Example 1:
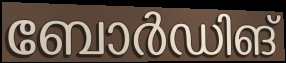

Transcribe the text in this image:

ബോർഡിങ്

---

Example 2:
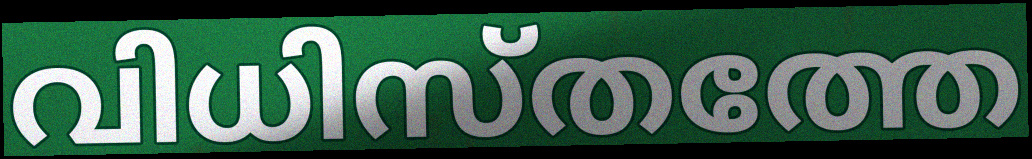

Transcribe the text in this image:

വിധിസ്തത്തേ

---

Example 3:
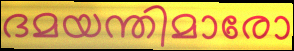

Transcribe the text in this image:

ദമയന്തിമാരോ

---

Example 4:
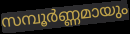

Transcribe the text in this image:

സമ്പൂർണ്ണമായും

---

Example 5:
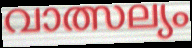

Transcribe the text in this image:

വാത്സല്യം